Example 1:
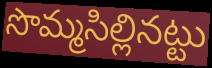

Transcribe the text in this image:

సొమ్మసిల్లినట్టు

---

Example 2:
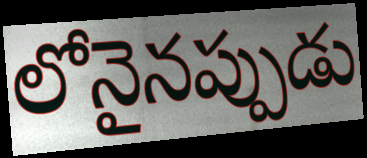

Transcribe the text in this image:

లోనైనప్పుడు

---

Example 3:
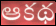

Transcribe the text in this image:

ఆకథ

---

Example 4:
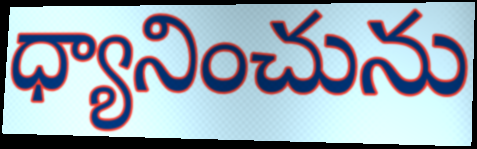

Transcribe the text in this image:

ధ్యానించును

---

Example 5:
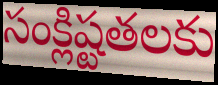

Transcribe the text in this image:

సంక్లిష్టతలకు